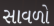
સાવળો